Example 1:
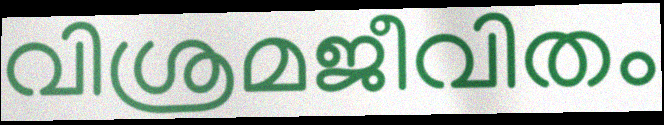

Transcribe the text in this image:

വിശ്രമജീവിതം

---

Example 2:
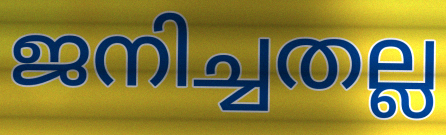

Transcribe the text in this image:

ജനിച്ചതല്ല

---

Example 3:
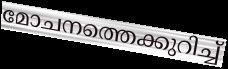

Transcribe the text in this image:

മോചനത്തെക്കുറിച്ച്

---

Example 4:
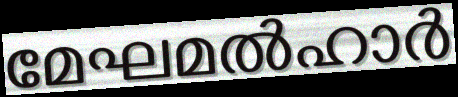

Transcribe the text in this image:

മേഘമൽഹാർ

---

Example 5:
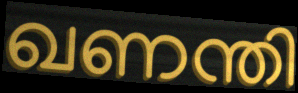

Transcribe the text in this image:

ഖണന്തി